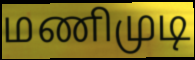
மணிமுடி